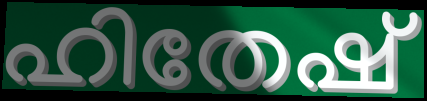
ഹിതേഷ്